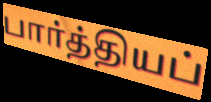
பார்த்தியப்